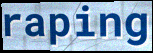
raping